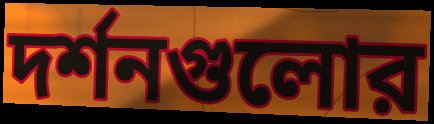
দর্শনগুলোর